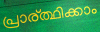
പ്രാര്ത്ഥിക്കാം